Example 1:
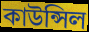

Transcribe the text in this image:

কাউন্সিল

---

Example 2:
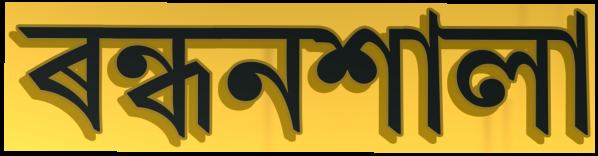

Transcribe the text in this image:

ৰন্ধনশালা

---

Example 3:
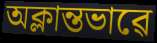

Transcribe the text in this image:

অক্লান্তভাৱে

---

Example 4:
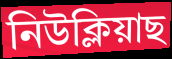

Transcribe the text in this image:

নিউক্লিয়াছ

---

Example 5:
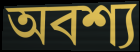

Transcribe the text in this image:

অবশ্য